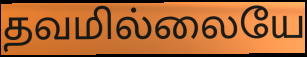
தவமில்லையே